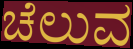
ಚೆಲುವ